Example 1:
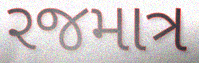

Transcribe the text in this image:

રજમાત્ર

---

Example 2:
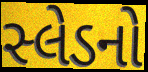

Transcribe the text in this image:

સ્લેડનો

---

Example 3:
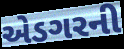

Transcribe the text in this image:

એડગરની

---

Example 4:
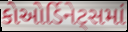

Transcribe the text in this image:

કોઓર્ડિનેટ્સમાં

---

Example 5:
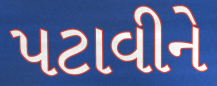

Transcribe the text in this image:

પટાવીને